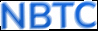
NBTC